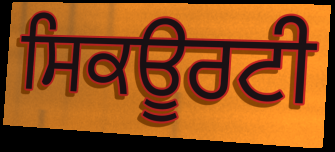
ਸਿਕਊਰਟੀ